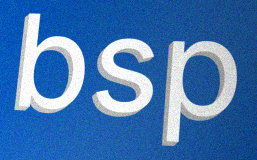
bsp